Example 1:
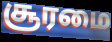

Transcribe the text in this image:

சூரமை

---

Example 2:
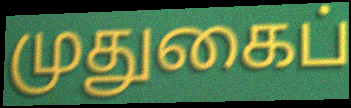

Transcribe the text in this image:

முதுகைப்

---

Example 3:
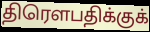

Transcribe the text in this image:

திரௌபதிக்குக்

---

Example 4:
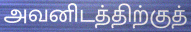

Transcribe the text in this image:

அவனிடத்திற்குத்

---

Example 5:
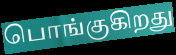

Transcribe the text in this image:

பொங்குகிறது